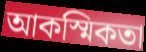
আকস্মিকতা